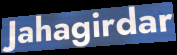
Jahagirdar